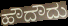
ಹೌದೌದು